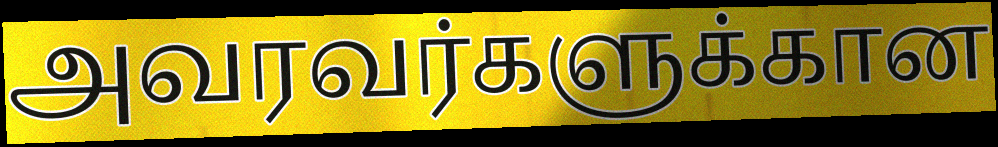
அவரவர்களுக்கான